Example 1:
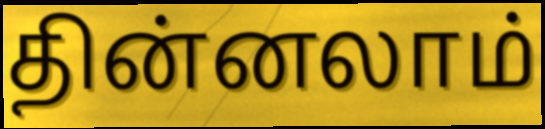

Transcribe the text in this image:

தின்னலாம்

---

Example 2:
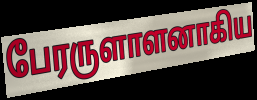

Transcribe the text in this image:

பேரருளாளனாகிய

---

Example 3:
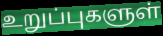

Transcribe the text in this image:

உறுப்புகளுள்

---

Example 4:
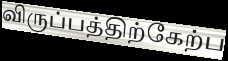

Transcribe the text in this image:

விருப்பத்திற்கேற்ப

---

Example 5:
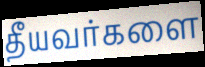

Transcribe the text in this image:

தீயவர்களை